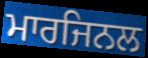
ਮਾਰਜਿਨਲ